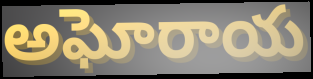
అఘోరాయ